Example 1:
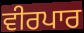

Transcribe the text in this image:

ਵੀਰਪਾਰ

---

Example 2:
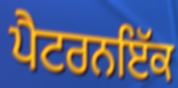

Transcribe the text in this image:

ਪੈਟਰਨਇੱਕ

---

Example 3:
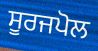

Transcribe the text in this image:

ਸੂਰਜਪੋਲ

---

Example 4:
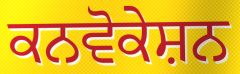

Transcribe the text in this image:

ਕਨਵੋਕੇਸ਼ਨ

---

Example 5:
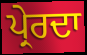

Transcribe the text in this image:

ਪ੍ਰੇਰਦਾ